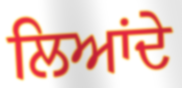
ਲਿਆਂਦੇ